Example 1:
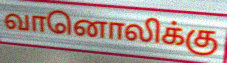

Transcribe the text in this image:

வானொலிக்கு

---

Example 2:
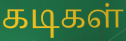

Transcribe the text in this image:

கடிகள்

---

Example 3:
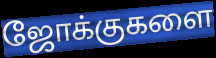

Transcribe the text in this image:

ஜோக்குகளை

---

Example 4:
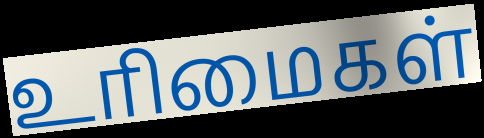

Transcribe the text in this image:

உரிமைகள்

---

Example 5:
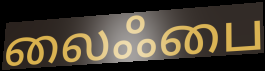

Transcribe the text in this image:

லைஃபை